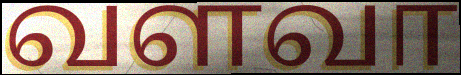
வளவா